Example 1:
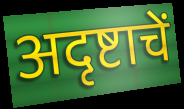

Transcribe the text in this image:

अदृष्टाचें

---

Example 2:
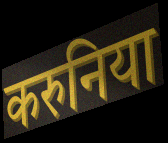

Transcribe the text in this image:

करुनिया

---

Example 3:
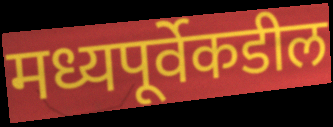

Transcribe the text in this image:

मध्यपूर्वेकडील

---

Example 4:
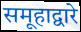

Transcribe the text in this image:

समूहाद्वारे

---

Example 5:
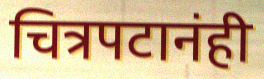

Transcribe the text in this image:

चित्रपटानंही